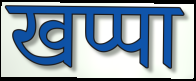
खप्पा